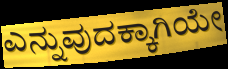
ಎನ್ನುವುದಕ್ಕಾಗಿಯೇ